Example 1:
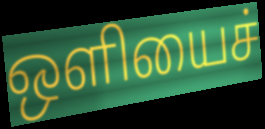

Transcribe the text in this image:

ஒளியைச்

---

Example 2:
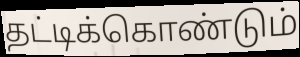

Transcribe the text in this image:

தட்டிக்கொண்டும்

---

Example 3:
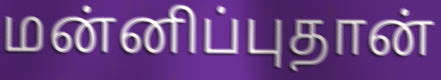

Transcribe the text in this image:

மன்னிப்புதான்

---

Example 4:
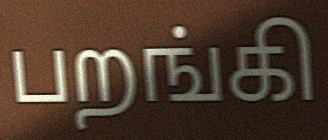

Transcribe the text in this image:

பறங்கி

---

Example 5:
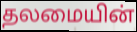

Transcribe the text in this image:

தலமையின்